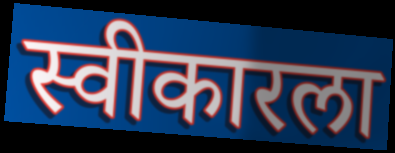
स्वीकारला